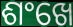
ଶଂଖେ